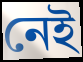
নেই